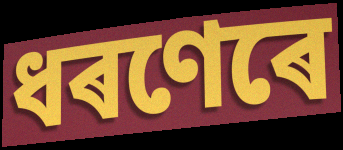
ধৰণেৰে